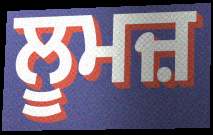
ਲੂਮਜ਼